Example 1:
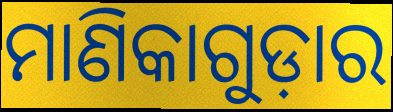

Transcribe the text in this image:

ମାଣିକାଗୁଡ଼ାର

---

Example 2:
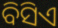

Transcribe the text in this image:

ବିସିଏ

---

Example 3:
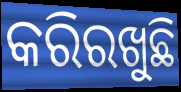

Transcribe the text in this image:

କରିରଖୁଛି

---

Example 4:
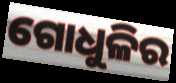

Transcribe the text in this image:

ଗୋଧୁଳିର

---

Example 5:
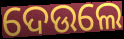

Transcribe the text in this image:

ଦେଉଲେ